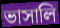
ভাসালি